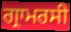
ਗ੍ਰਾਮਰਸੀ